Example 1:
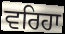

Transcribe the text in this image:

ਵਰਿਹਾ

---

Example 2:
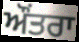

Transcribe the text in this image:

ਔਂਤਰਾ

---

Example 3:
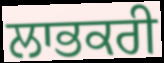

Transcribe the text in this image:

ਲਾਭਕਰੀ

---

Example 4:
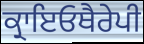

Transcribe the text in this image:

ਕ੍ਰਾਇਓਥੈਰੇਪੀ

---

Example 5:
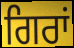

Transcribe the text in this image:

ਗਿਰਾਂ